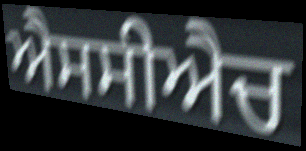
ਐਸਸੀਐਚ